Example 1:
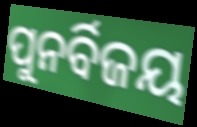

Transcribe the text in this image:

ପୁନର୍ବିଜୟ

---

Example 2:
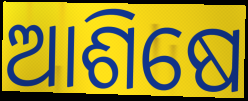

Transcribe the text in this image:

ଆଶିଷେ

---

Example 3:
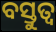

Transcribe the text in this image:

ବସ୍ତୁତ୍ୱ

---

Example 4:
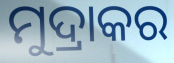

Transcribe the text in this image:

ମୁଦ୍ରାକର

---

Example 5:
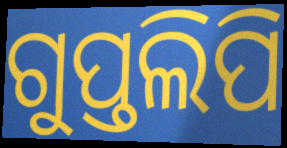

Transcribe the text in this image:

ଗୁପ୍ତଲିପି